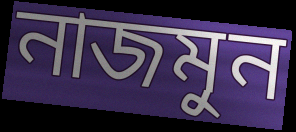
নাজমুন